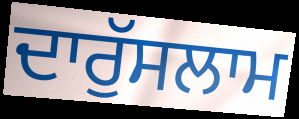
ਦਾਰੁੱਸਲਾਮ